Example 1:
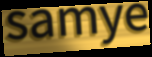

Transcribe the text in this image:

samye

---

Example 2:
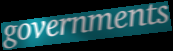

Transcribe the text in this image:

governments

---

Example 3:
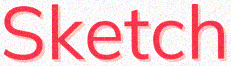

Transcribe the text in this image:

Sketch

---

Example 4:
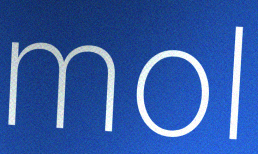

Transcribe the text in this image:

mol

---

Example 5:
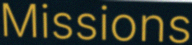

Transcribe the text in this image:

Missions